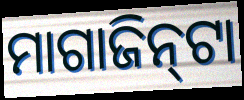
ମାଗାଜିନ୍‌ଟା